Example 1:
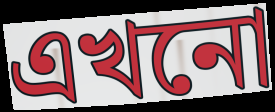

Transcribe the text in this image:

এখনো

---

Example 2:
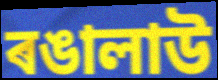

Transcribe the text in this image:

ৰঙালাউ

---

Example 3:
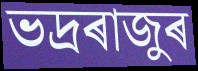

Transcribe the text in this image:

ভদ্ৰৰাজুৰ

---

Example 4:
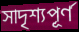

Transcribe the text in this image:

সাদৃশ্যপূৰ্ণ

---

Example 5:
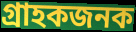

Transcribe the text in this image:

গ্ৰাহকজনক